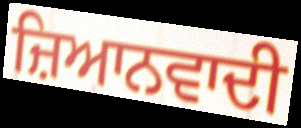
ਜ਼ਿਆਨਵਾਦੀ